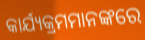
କାର୍ଯ୍ୟକ୍ରମମାନଙ୍କରେ